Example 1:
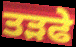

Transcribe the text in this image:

ਤੜਫੇ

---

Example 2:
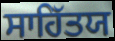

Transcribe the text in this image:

ਸਾਹਿੱਤਯ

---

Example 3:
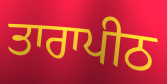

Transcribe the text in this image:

ਤਾਰਾਪੀਠ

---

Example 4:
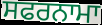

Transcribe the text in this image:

ਸਫਰਨਾਮਾ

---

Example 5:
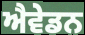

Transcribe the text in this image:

ਐਵੇਡਨ